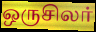
ஒருசிலர்